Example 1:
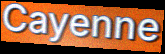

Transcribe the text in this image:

Cayenne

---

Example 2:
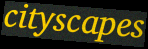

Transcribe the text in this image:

cityscapes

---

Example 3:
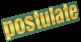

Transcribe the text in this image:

postulate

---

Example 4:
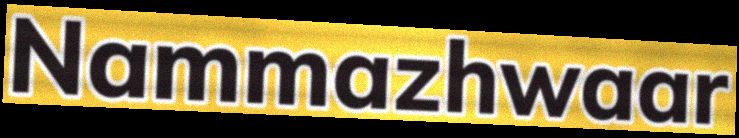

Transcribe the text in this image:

Nammazhwaar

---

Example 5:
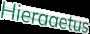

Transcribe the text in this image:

Hieraaetus